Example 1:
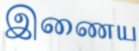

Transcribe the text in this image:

இணைய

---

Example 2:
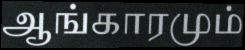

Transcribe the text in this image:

ஆங்காரமும்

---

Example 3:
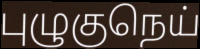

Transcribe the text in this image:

புழுகுநெய்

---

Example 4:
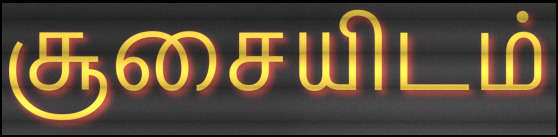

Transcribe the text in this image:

சூசையிடம்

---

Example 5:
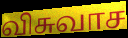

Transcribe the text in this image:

விசுவாச